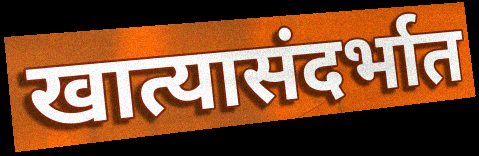
खात्यासंदर्भात